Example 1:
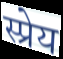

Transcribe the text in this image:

स्प्रेय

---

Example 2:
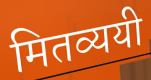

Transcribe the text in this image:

मितव्ययी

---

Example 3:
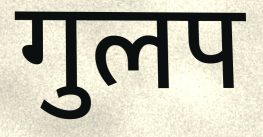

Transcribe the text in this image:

गुलप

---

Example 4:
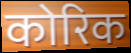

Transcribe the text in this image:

कोरिक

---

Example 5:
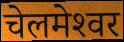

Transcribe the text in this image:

चेलमेश्‍वर